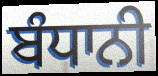
ਬੰਧਾਨੀ